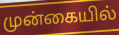
முன்கையில்